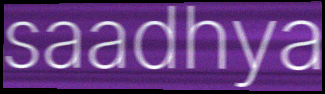
saadhya